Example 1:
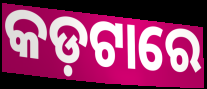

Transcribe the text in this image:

କଡ଼ଟାରେ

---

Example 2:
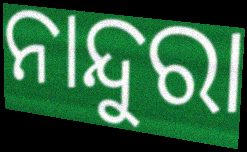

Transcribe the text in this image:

ନାନ୍ଦୁରା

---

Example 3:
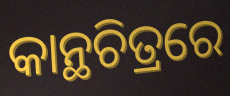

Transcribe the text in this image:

କାନ୍ଥଚିତ୍ରରେ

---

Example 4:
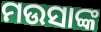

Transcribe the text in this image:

ମଉସାଙ୍କ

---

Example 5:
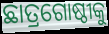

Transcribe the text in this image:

ଛାତ୍ରଗୋଷ୍ଠୀକୁ